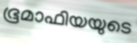
ഭൂമാഫിയയുടെ